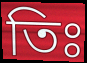
তিঃ